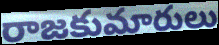
రాజకుమారులు